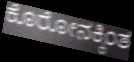
ಕೊರೋನಕ್ಕಿಂತ